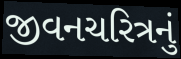
જીવનચરિત્રનું